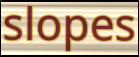
slopes